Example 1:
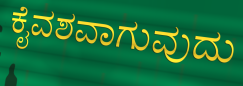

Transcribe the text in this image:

ಕೈವಶವಾಗುವುದು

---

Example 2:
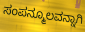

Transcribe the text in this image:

ಸಂಪನ್ಮೂಲವನ್ನಾಗಿ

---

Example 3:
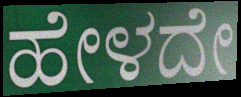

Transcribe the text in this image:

ಹೇಳದೇ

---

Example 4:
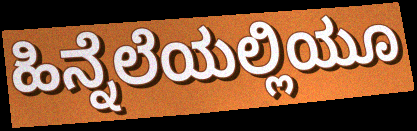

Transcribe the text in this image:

ಹಿನ್ನೆಲೆಯಲ್ಲಿಯೂ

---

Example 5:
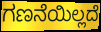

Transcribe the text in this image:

ಗಣನೆಯಿಲ್ಲದೆ